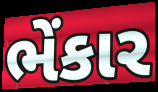
ભેંકાર